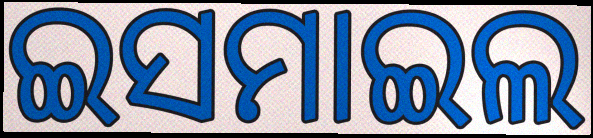
ଇସମାଇଲ